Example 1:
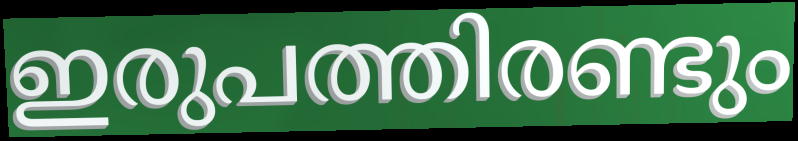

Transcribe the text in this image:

ഇരുപത്തിരണ്ടും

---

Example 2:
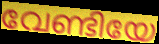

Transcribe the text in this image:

വേണ്ടിയേ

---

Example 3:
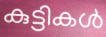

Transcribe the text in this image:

കുട്ടികൾ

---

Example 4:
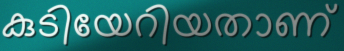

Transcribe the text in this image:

കുടിയേറിയതാണ്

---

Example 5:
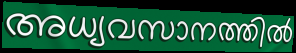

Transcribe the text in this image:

അധ്യവസാനത്തിൽ